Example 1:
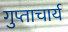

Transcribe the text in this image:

गुप्ताचार्य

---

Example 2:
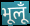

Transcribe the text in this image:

भूलूँ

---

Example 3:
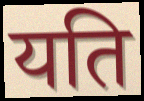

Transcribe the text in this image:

यति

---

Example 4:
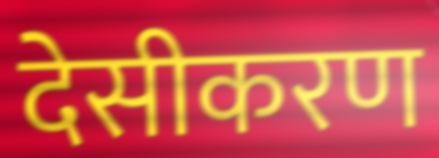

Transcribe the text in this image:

देसीकरण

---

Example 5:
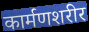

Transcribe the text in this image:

कार्मणशरीर